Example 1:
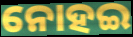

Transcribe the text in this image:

ନୋହଇ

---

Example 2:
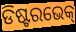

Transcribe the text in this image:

ଡିଷ୍ଟରଭେକ୍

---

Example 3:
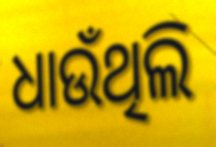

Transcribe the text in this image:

ଧାଉଁଥିଲି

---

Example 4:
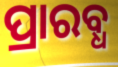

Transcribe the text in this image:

ପ୍ରାରବ୍ଧ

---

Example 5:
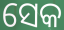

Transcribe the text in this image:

ସେକ